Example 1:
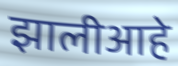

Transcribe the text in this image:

झालीआहे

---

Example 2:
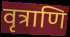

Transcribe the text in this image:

वृत्राणि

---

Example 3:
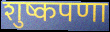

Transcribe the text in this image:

शुष्कपणा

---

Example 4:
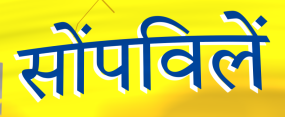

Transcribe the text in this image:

सोंपविलें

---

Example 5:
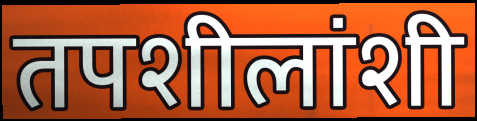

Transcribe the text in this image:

तपशीलांशी